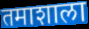
तमाशाला